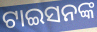
ଟାଇସନଙ୍କ